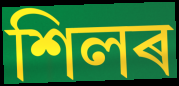
শিলৰ